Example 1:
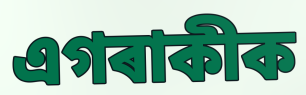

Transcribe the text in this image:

এগৰাকীক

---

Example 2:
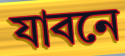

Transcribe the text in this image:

যাবনে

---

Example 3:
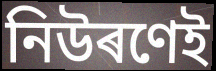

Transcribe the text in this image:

নিউৰণেই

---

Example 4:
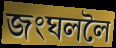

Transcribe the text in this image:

জংঘললৈ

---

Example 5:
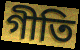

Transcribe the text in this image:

গীতি